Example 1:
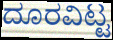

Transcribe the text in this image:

ದೂರವಿಟ್ಟ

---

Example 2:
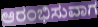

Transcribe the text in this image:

ಆರಂಭಿಸುವಾಗ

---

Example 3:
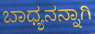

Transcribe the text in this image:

ಬಾಧ್ಯನನ್ನಾಗಿ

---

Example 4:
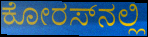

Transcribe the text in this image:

ಕೋರಸ್‌ನಲ್ಲಿ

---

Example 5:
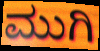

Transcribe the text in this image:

ಮುಗಿ